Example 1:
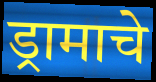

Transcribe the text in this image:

ड्रामाचे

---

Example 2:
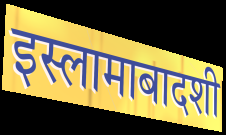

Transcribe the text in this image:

इस्लामाबादशी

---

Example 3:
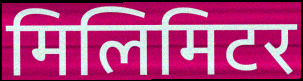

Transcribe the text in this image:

मिलिमिटर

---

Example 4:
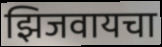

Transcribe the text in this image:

झिजवायचा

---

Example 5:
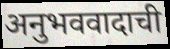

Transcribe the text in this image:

अनुभववादाची